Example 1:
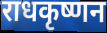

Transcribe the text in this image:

राधकृष्णन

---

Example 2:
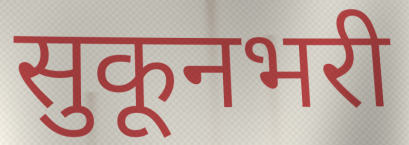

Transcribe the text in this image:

सुकूनभरी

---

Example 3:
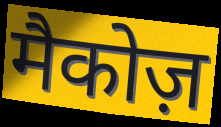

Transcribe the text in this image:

मैकोज़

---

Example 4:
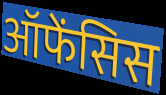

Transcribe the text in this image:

ऑफेंसिस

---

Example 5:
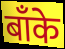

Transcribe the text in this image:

बाँके